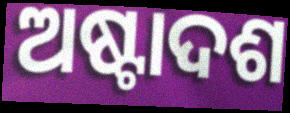
ଅଷ୍ଟାଦଶ